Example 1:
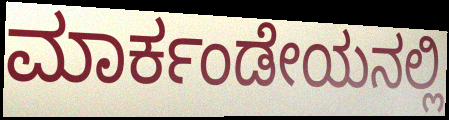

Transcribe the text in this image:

ಮಾರ್ಕಂಡೇಯನಲ್ಲಿ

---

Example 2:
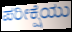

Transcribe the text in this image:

ಪರೀಕ್ಷೆಯು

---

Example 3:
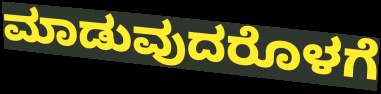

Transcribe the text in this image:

ಮಾಡುವುದರೊಳಗೆ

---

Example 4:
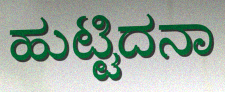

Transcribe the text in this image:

ಹುಟ್ಟಿದನಾ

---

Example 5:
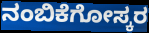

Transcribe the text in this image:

ನಂಬಿಕೆಗೋಸ್ಕರ